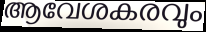
ആവേശകരവും